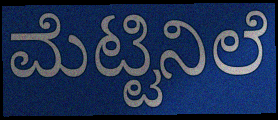
ಮೆಟ್ಟಿನಿಲೆ